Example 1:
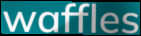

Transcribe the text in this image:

waffles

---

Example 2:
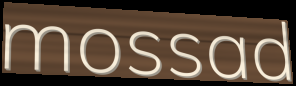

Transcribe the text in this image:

mossad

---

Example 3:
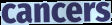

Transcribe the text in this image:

cancers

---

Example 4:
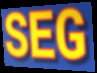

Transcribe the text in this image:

SEG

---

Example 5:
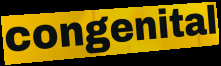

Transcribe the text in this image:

congenital